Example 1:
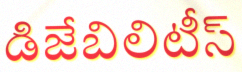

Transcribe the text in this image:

డిజేబిలిటీస్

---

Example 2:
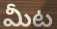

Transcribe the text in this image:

మీట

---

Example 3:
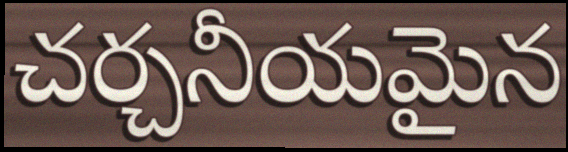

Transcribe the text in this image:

చర్చనీయమైన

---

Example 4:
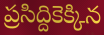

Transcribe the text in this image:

ప్రసిద్దికెక్కిన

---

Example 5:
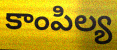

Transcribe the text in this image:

కాంపిల్య